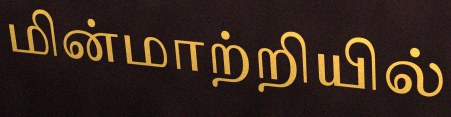
மின்மாற்றியில்